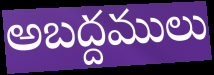
అబద్దములు